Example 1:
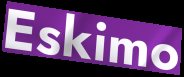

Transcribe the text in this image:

Eskimo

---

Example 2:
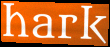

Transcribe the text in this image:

hark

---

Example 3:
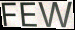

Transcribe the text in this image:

FEW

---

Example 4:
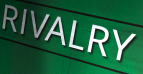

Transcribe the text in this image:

RIVALRY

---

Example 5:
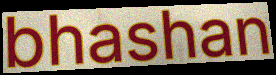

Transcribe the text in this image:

bhashan